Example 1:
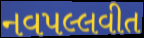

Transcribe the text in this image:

નવપલ્લવીત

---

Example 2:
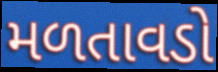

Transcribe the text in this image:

મળતાવડો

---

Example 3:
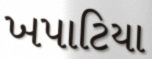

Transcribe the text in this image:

ખપાટિયા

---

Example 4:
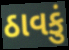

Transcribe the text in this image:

ઠાવકું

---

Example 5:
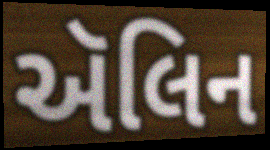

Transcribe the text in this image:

ઍલિન